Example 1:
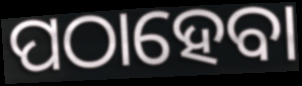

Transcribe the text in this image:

ପଠାହେବା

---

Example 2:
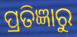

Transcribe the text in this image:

ପ୍ରତିଜ୍ଞାରୁ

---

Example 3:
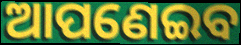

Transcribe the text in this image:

ଆପଣେଇବ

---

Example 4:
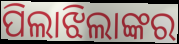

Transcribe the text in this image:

ପିଲାଝିଲାଙ୍କର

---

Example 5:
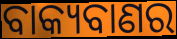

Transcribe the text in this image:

ବାକ୍ୟବାଣର